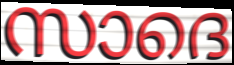
സാദെ